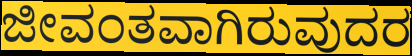
ಜೀವಂತವಾಗಿರುವುದರ